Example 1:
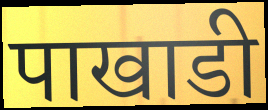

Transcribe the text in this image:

पाखाडी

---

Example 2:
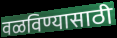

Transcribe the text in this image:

वळविण्यासाठी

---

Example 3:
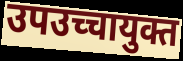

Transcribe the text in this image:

उपउच्चायुक्त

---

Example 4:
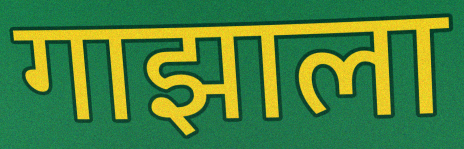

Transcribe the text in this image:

गाझाला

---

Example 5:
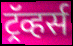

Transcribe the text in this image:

ट्रॅव्हर्स